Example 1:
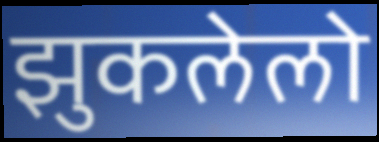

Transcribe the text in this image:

झुकलेलो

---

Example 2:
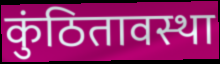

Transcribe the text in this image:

कुंठितावस्था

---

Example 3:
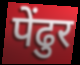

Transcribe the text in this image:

पेंढुर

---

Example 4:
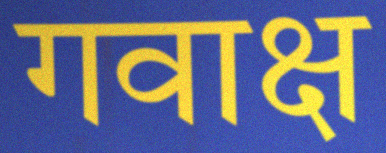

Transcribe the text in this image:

गवाक्ष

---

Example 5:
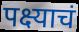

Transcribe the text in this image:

पक्ष्याचं